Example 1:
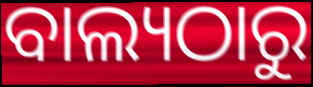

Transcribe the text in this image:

ବାଲ୍ୟଠାରୁ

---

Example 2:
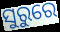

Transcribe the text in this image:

ସୁରୁରେ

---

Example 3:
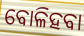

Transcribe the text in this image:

ବୋଳିହବା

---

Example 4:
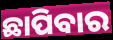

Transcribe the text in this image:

ଛାପିବାର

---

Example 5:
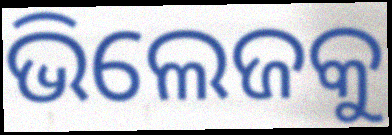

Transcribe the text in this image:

ଭିଲେଜକୁ